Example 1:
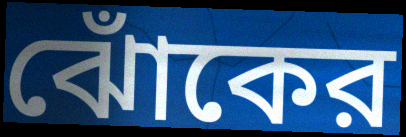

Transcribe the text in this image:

ঝোঁকের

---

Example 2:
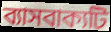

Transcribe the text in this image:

ব্যাসবাক্যটি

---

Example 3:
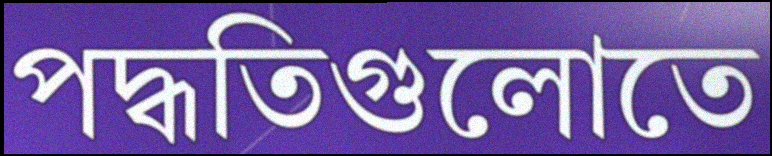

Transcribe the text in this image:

পদ্ধতিগুলোতে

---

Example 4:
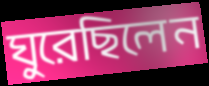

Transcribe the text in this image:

ঘুরেছিলেন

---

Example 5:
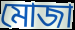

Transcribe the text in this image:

মোজা